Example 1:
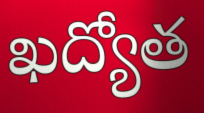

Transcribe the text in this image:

ఖద్యోత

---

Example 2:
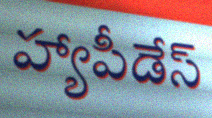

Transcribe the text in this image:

హ్యాపీడేస్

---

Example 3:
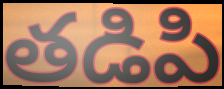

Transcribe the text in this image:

తడిపి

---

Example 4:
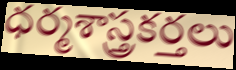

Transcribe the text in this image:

ధర్మశాస్త్రకర్తలు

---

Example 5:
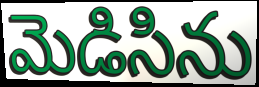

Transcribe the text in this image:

మెడిసిను